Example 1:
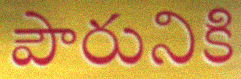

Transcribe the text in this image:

పౌరునికి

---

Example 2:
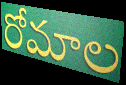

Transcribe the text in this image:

రోమాల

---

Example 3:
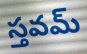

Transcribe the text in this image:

స్తవమ్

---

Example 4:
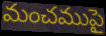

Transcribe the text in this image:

మంచముపై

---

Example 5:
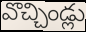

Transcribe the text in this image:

వొచ్చిండ్లు